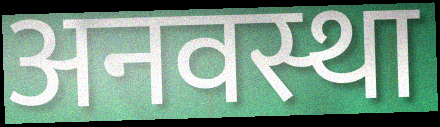
अनवस्था